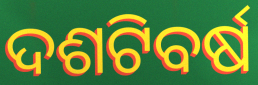
ଦଶଟିବର୍ଷ